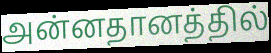
அன்னதானத்தில்